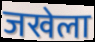
जखेला